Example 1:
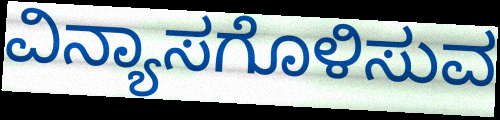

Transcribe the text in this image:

ವಿನ್ಯಾಸಗೊಳಿಸುವ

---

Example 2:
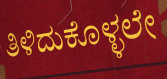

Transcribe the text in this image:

ತಿಳಿದುಕೊಳ್ಳಲೇ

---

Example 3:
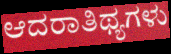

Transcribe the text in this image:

ಆದರಾತಿಥ್ಯಗಳು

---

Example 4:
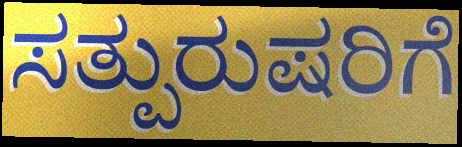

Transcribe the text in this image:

ಸತ್ಪುರುಷರಿಗೆ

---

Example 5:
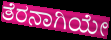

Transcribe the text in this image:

ತೆರನಾಗಿಯೇ